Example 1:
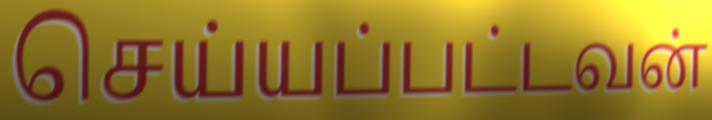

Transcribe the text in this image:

செய்யப்பட்டவன்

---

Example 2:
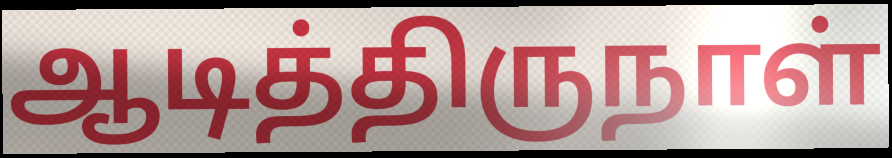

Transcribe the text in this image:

ஆடித்திருநாள்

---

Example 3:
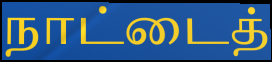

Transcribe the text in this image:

நாட்டைத்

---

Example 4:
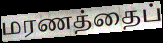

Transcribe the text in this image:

மரணத்தைப்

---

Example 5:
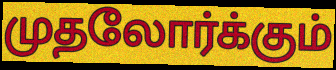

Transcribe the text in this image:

முதலோர்க்கும்